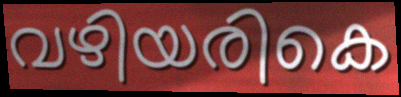
വഴിയരികെ